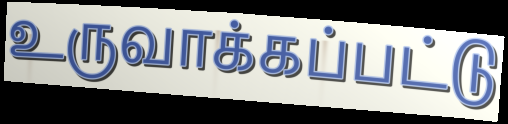
உருவாக்கப்பட்டு